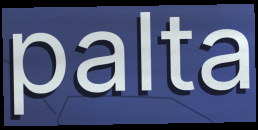
palta